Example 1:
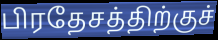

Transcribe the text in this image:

பிரதேசத்திற்குச்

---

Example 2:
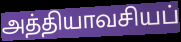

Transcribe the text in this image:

அத்தியாவசியப்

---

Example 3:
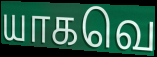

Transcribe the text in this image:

யாகவெ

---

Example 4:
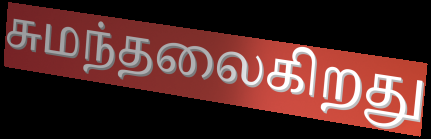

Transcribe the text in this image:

சுமந்தலைகிறது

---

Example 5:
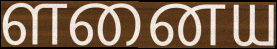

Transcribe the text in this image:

ளனைய